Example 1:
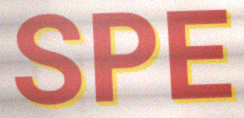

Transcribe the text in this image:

SPE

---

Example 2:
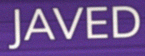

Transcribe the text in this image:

JAVED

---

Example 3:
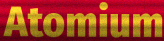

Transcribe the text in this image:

Atomium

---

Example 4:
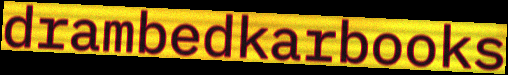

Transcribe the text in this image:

drambedkarbooks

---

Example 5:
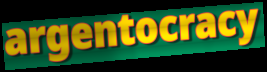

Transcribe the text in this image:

argentocracy